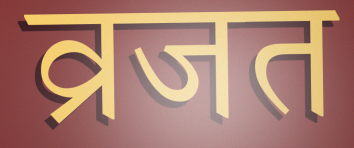
व्रजत